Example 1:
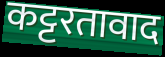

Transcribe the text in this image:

कट्टरतावाद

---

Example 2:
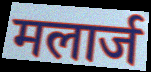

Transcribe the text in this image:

मलार्ज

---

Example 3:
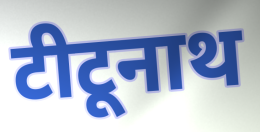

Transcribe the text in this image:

टीटूनाथ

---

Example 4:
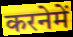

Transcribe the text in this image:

करनेमें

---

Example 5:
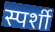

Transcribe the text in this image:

स्पर्शी